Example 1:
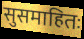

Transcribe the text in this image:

सुसमाहितः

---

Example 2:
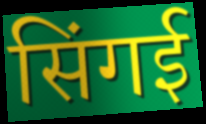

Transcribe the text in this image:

सिंगई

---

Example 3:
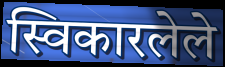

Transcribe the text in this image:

स्विकारलेले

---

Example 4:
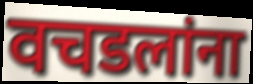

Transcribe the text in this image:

वचडलांना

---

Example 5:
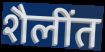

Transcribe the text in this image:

शैलींत